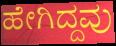
ಹೇಗಿದ್ದವು